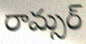
రామ్సర్